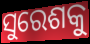
ସୁରେଶକୁ